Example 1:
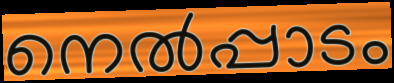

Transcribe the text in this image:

നെൽപ്പാടം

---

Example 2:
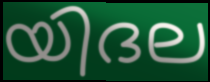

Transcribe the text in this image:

യിദല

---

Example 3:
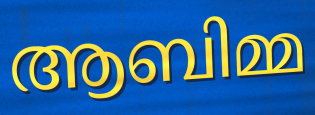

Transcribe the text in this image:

ആബിമ്മ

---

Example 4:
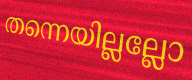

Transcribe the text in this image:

തന്നെയില്ലല്ലോ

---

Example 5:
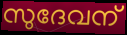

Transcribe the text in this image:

സുദേവന്